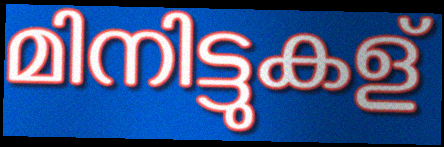
മിനിട്ടുകള്